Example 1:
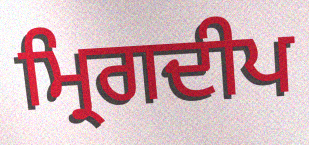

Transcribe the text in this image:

ਮ੍ਰਿਗਦੀਪ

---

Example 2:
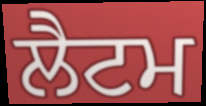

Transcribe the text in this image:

ਲੈਟਮ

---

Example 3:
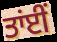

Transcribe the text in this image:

ਤਾਂਈਂ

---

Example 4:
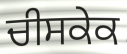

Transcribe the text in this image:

ਚੀਸਕੇਕ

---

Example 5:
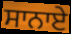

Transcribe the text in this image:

ਸਾਨਾਏ